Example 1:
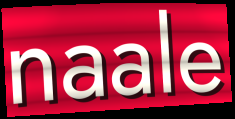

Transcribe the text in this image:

naale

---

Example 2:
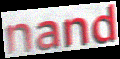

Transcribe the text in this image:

nand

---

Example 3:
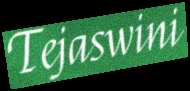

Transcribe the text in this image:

Tejaswini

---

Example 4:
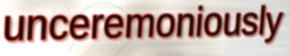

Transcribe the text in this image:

unceremoniously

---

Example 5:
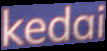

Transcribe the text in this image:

kedai